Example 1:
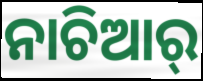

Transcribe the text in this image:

ନାଚିଆର୍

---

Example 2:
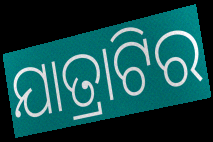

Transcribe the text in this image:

ଯାତ୍ରାଟିର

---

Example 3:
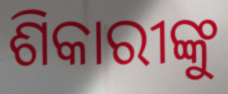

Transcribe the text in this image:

ଶିକାରୀଙ୍କୁ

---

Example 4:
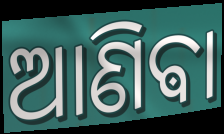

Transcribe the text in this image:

ଆଣିଵା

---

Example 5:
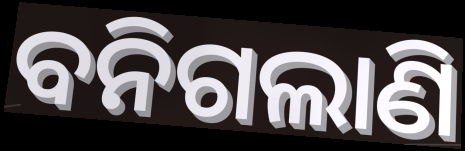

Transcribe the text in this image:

ବନିଗଲାଣି